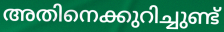
അതിനെക്കുറിച്ചുണ്ട്